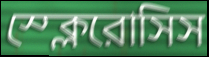
স্ক্লেরোসিস